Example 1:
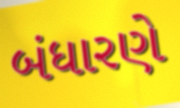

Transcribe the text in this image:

બંધારણે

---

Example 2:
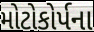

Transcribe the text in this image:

મોટોકોર્પના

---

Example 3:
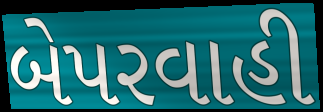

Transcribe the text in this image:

બેપરવાહી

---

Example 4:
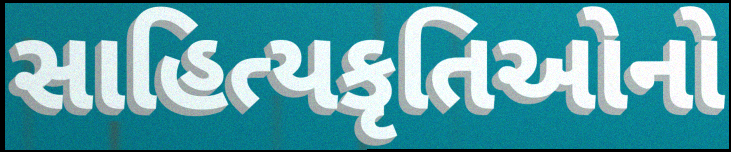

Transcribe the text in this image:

સાહિત્યકૃતિઓનો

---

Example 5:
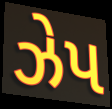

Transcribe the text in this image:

ઝેપ